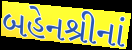
બહેનશ્રીનાં